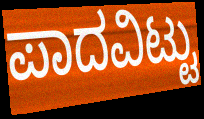
ಪಾದವಿಟ್ಟು